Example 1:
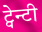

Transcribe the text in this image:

ट्वेन्टी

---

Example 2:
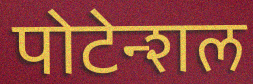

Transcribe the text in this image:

पोटेन्शल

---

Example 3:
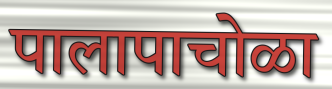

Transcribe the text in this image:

पालापाचोळा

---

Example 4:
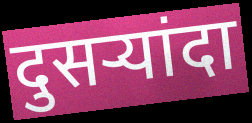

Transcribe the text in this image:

दुसऱ्यांदा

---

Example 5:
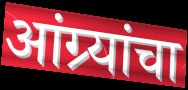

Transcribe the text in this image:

आंग्र्यांचा